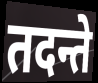
तदन्ते